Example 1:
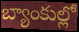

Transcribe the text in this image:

బ్యాంకుల్లో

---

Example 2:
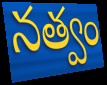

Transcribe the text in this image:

నత్వం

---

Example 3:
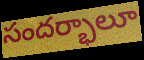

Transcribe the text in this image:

సందర్భాలూ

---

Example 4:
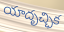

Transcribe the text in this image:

యాదృచ్ఛిక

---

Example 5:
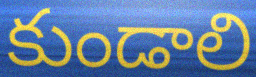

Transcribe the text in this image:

కుండాలి